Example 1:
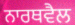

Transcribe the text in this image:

ਨਾਰਥਵੈਲ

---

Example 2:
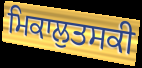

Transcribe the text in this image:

ਮਿਕਾਲੁਤਸਕੀ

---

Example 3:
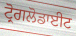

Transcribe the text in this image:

ਟ੍ਰੋਗਲੋਡਾਈਟ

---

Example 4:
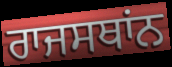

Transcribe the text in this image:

ਰਾਜਸਥਾਂਨ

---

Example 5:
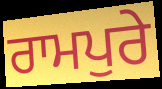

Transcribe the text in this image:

ਰਾਮਪੁਰੇ